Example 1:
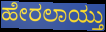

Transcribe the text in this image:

ಹೇರಲಾಯ್ತು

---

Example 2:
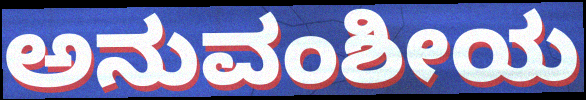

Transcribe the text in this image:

ಅನುವಂಶೀಯ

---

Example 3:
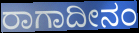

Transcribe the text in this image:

ರಾಗಾದೀನಂ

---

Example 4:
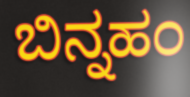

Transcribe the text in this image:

ಬಿನ್ನಹಂ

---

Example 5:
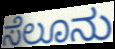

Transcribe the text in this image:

ಸೆಲೂನು